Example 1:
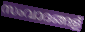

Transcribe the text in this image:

സംവാദങ്ങള്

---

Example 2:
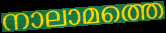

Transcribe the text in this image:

നാലാമത്തെ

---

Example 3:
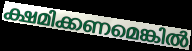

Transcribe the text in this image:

ക്ഷമിക്കണമെങ്കിൽ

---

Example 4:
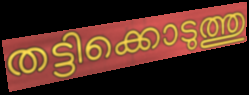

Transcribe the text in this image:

തട്ടിക്കൊടുത്തു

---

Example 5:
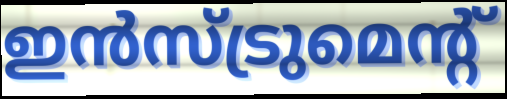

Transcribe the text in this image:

ഇൻസ്ട്രുമെന്റ്